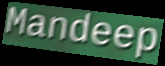
Mandeep